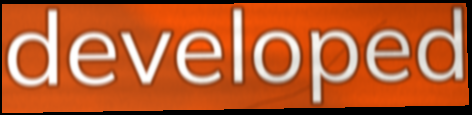
developed